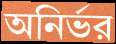
অনির্ভর